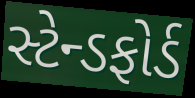
સ્ટેન્ડફોર્ડ